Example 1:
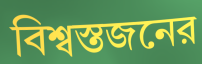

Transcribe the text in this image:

বিশ্বস্তজনের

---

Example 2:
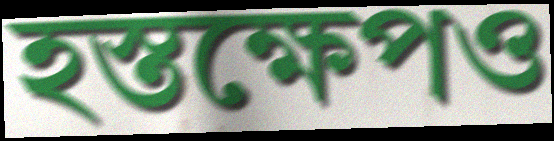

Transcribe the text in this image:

হস্তক্ষেপও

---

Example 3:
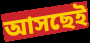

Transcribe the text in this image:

আসছেই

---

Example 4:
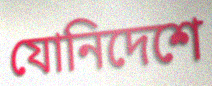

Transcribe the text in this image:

যোনিদেশে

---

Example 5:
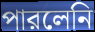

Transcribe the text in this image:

পারলেনি